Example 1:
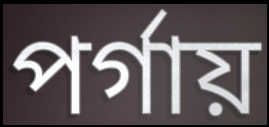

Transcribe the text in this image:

পর্গায়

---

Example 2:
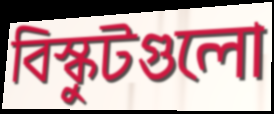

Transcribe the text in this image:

বিস্কুটগুলো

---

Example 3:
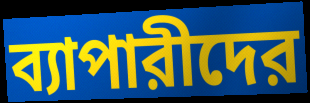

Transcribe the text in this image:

ব্যাপারীদের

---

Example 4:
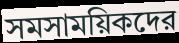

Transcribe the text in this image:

সমসাময়িকদের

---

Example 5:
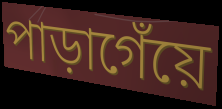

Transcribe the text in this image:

পাড়াগেঁয়ে